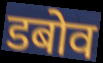
डबोव